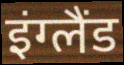
इंग्लैंड